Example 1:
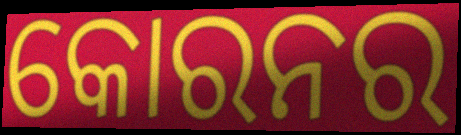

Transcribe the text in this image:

କୋରନର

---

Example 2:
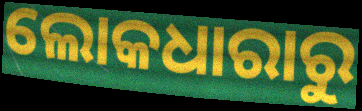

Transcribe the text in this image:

ଲୋକଧାରାରୁ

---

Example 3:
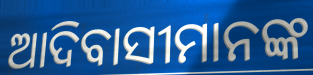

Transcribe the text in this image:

ଆଦିବାସୀମାନଙ୍କ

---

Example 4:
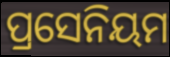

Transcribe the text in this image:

ପ୍ରସେନିୟମ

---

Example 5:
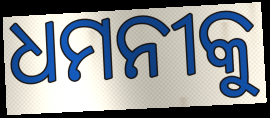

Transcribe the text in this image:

ଧମନୀକୁ